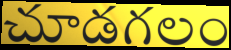
చూడగలం